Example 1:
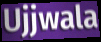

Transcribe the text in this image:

Ujjwala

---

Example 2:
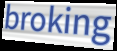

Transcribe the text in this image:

broking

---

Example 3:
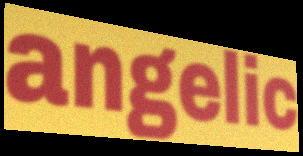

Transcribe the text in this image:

angelic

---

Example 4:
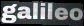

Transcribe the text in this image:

galileo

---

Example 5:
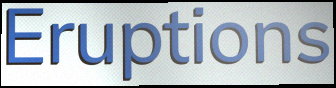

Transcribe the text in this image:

Eruptions